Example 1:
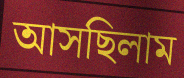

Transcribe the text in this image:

আসছিলাম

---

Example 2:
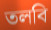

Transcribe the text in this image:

তলবি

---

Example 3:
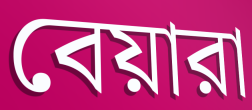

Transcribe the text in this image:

বেয়ারা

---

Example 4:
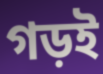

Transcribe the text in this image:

গড়ই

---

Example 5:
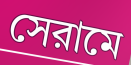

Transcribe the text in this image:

সেরামে